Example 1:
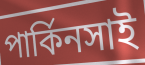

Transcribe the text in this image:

পার্কিনসাই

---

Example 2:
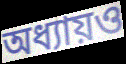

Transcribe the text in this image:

অধ্যায়ও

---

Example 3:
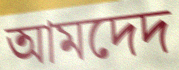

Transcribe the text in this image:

আমদেদ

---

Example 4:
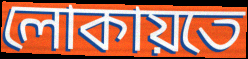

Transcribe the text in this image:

লোকায়তে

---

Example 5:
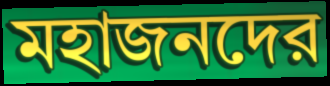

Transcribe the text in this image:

মহাজনদের